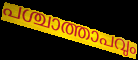
പശ്ചാത്താപവും